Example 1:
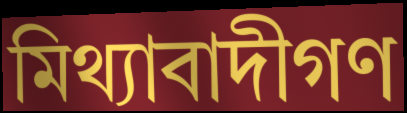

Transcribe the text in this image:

মিথ্যাবাদীগণ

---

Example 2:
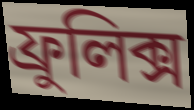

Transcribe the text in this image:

ফ্রুলিক্স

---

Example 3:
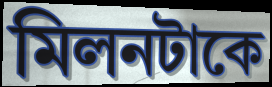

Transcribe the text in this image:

মিলনটাকে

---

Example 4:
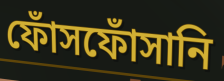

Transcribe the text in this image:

ফোঁসফোঁসানি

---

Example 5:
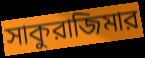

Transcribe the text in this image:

সাকুরাজিমার